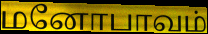
மனோபாவம்